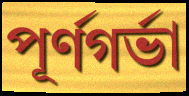
পূর্ণগর্ভা